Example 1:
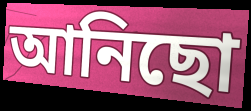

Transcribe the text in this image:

আনিছো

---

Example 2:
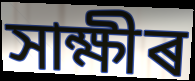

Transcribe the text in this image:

সাক্ষীৰ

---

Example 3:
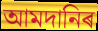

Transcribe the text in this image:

আমদানিৰ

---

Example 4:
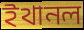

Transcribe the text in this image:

ইথানল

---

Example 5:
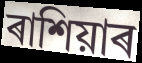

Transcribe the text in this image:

ৰাশিয়াৰ